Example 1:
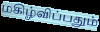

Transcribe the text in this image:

மகிழ்விப்பதும்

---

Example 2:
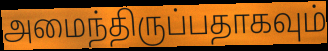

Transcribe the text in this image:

அமைந்திருப்பதாகவும்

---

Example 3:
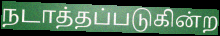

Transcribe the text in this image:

நடாத்தப்படுகின்ற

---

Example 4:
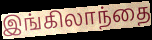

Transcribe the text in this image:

இங்கிலாந்தை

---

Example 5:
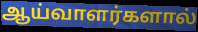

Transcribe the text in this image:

ஆய்வாளர்களால்